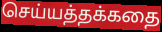
செய்யத்தக்கதை